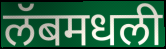
लॅबमधली